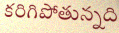
కరిగిపోతున్నది